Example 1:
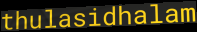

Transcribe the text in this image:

thulasidhalam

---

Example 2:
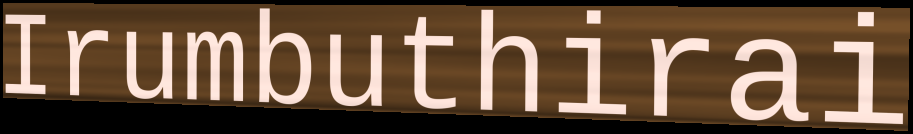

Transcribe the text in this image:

Irumbuthirai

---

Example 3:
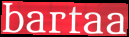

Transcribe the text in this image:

bartaa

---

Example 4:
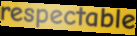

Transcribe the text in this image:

respectable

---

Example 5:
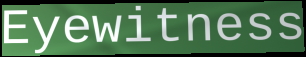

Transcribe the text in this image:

Eyewitness